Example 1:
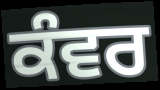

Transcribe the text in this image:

ਕੰਵਰ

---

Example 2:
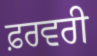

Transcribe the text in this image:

ਫ਼ਰਵਰੀ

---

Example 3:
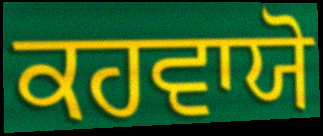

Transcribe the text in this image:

ਕਹਵਾਯੋ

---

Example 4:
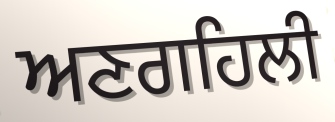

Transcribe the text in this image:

ਅਣਗਹਿਲੀ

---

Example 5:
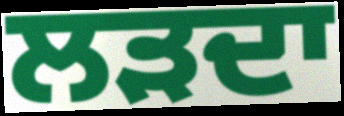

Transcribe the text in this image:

ਲੜਦਾ